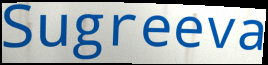
Sugreeva